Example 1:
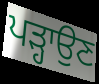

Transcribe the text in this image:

ਪੜ੍ਹਾਉਣ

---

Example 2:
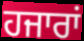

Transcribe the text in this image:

ਹਜਾਰਾਂ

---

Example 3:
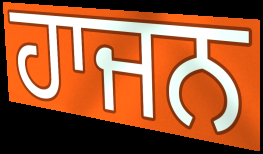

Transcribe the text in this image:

ਹਾਜਨ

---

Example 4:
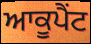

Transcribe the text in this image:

ਆਕੂਪੈਂਟ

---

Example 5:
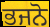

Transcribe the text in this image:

ਭਜਨੋ